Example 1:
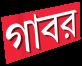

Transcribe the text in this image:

গাবর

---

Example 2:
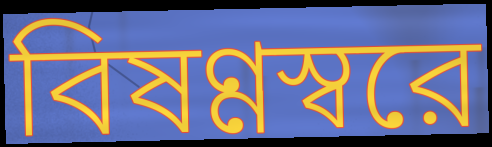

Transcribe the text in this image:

বিষণ্ণস্বরে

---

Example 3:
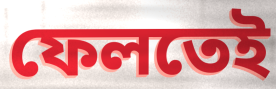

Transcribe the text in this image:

ফেলতেই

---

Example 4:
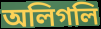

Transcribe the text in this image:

অলিগলি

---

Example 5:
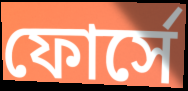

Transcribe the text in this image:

ফোর্সে